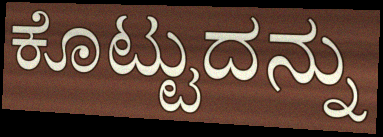
ಕೊಟ್ಟುದನ್ನು